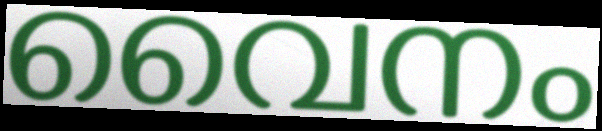
വൈനം